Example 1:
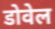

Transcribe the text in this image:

डोवेल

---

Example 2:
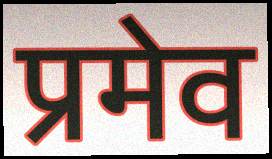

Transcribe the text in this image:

प्रमेव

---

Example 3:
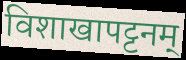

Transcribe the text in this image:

विशाखापट्टनम्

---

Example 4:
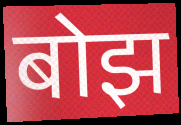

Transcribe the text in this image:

बोझ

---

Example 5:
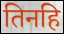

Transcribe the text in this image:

तिनहि